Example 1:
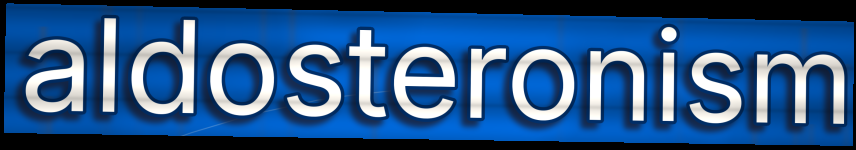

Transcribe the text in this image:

aldosteronism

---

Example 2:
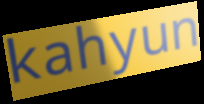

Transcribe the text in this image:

kahyun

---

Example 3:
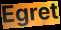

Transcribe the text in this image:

Egret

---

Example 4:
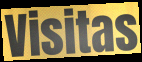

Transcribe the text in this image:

Visitas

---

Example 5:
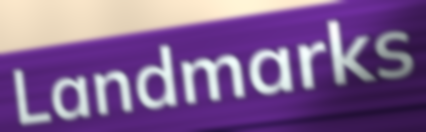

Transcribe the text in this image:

Landmarks